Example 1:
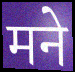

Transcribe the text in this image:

मने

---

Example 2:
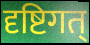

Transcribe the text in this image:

दृष्टिगत्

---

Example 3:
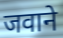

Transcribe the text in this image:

जवाने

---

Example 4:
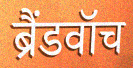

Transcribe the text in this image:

ब्रैंडवॉच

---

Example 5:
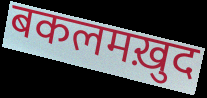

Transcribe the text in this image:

बकलमख़ुद